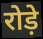
रोड़े